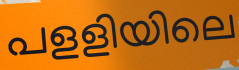
പളളിയിലെ